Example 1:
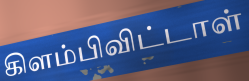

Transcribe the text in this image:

கிளம்பிவிட்டாள்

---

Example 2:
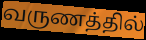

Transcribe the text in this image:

வருணத்தில்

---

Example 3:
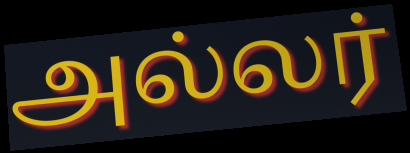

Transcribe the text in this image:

அல்லர்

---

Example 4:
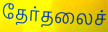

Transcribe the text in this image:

தேர்தலைச்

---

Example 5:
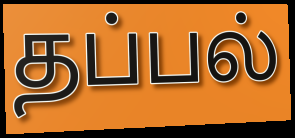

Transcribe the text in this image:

தப்பல்